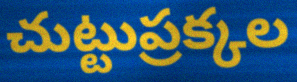
చుట్టుప్రక్కల